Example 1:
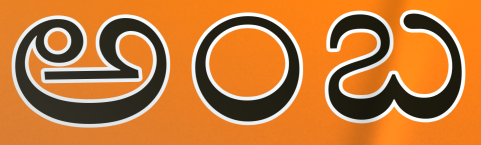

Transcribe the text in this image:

అంబ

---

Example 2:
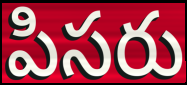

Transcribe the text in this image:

పిసరు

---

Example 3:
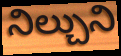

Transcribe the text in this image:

నిల్చుని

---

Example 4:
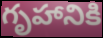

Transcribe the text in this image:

గృహానికి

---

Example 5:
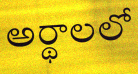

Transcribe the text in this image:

అర్థాలలో